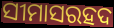
ସୀମାସରହଦ